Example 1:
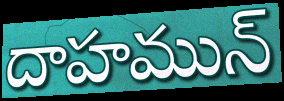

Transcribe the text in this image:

దాహమున్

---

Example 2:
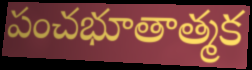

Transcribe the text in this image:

పంచభూతాత్మక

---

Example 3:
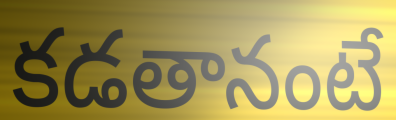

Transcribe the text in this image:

కడతానంటే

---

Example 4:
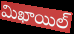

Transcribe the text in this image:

మిఖాయిల్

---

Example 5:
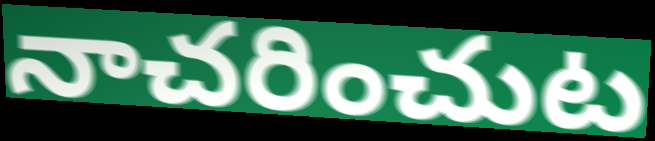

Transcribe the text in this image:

నాచరించుట